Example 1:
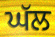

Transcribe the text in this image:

ਘੱਲ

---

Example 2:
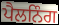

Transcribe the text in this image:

ਪੈਲਨਿੰਗ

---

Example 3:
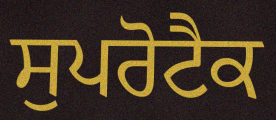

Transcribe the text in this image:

ਸੁਪਰੋਟੈਕ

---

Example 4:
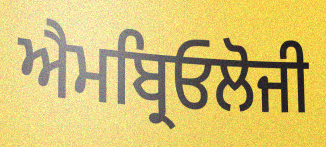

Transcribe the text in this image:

ਐਮਬ੍ਰਿਓਲੋਜੀ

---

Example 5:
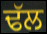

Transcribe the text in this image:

ਢੱਲ